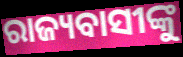
ରାଜ୍ୟବାସୀଙ୍କୁ